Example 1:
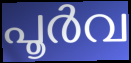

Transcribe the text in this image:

പൂർവ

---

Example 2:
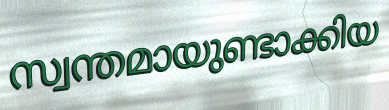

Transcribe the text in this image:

സ്വന്തമായുണ്ടാക്കിയ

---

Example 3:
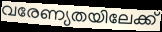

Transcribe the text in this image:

വരേണ്യതയിലേക്ക്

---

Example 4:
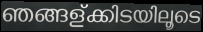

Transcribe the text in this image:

ഞങ്ങള്ക്കിടയിലൂടെ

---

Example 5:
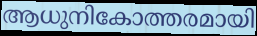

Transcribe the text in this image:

ആധുനികോത്തരമായി